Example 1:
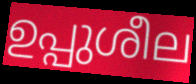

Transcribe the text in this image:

ഉപ്പുശീല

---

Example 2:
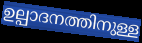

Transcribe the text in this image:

ഉല്പാദനത്തിനുള്ള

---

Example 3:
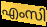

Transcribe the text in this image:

എംസി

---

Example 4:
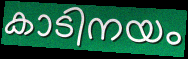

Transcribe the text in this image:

കാടിനയം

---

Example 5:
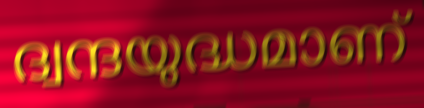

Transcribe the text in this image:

ദ്വന്ദയുദ്ധമാണ്